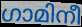
ഗാമിനീ